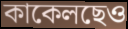
কাকেলছেও